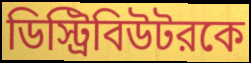
ডিস্ট্রিবিউটরকে